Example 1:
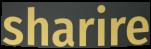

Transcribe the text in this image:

sharire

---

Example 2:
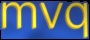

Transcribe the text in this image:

mvq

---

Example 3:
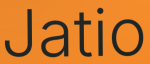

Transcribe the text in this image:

Jatio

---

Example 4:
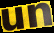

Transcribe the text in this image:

un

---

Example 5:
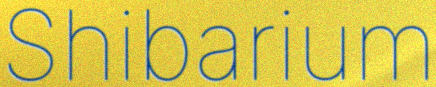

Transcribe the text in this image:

Shibarium